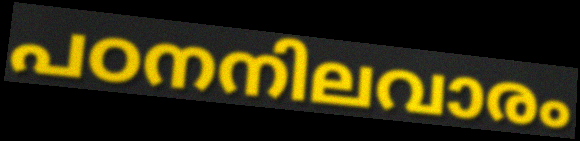
പഠനനിലവാരം